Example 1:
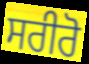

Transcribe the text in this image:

ਸਰੀਰੋ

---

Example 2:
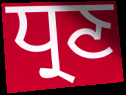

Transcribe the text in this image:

ਧ੍ਰਣ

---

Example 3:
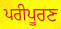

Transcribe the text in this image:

ਪਰੀਪੂਰਣ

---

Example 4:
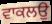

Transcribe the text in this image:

ਵਾਕਲਉ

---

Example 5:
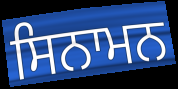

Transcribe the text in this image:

ਸਿਨਾਮਨ